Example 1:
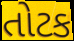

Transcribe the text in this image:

તોટક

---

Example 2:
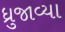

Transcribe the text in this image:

ધ્રુજાવ્યા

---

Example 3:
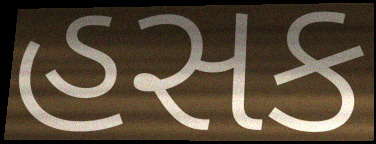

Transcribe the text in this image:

હસક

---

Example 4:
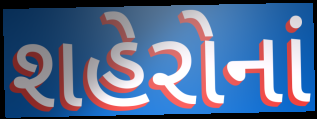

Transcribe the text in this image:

શહેરોનાં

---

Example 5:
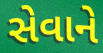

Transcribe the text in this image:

સેવાને